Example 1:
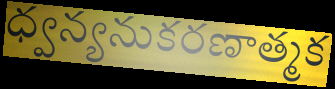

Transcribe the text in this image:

ధ్వన్యనుకరణాత్మక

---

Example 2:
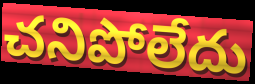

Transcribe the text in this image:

చనిపోలేదు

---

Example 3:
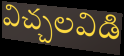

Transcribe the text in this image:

విచ్చలవిడి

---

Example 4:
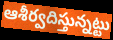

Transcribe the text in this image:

ఆశీర్వదిస్తున్నట్టు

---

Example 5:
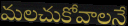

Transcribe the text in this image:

మలచుకోవాలనే